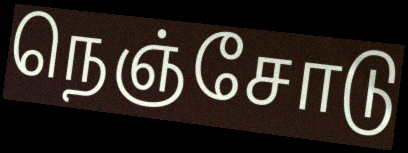
நெஞ்சோடு